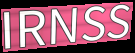
IRNSS